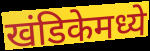
खंडिकेमध्ये